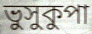
ভুসুকুপা